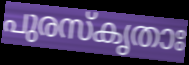
പുരസ്കൃതാഃ